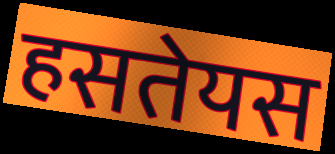
हसतेयस